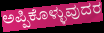
ಅಪ್ಪಿಕೊಳ್ಳುವುದರ